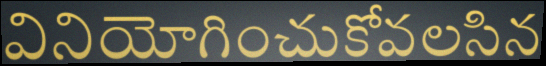
వినియోగించుకోవలసిన